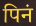
पिनं